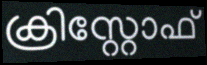
ക്രിസ്റ്റോഫ്